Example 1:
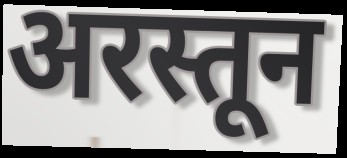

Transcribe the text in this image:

अरस्तून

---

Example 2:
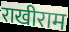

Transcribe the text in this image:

राखीराम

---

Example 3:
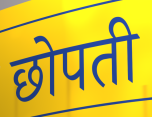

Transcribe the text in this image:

छोपती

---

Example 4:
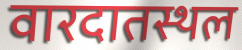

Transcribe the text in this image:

वारदातस्थल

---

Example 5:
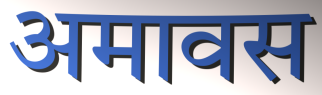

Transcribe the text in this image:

अमावस